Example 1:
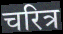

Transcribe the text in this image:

चरित्र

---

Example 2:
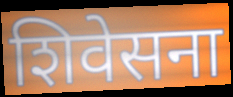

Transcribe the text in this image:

शिवेसना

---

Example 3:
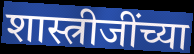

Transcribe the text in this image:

शास्त्रीजींच्या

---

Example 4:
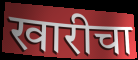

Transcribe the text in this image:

खारीचा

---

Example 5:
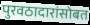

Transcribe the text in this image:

पुरवठादारांसोबत